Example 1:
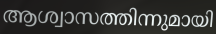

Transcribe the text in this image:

ആശ്വാസത്തിന്നുമായി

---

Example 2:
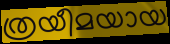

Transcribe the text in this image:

ത്രയീമയായ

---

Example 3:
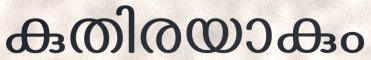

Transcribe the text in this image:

കുതിരയാകും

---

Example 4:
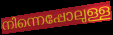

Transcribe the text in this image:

നിന്നെപ്പോലുള്ള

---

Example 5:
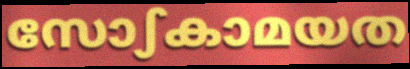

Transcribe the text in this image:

സോഽകാമയത